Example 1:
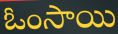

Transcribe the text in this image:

ఓంసాయి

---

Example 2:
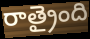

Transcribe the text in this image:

రాత్రైంది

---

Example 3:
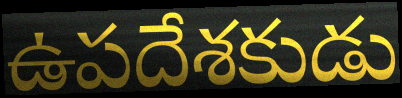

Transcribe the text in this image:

ఉపదేశకుడు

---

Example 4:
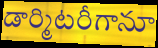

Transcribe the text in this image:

డార్మిటరీగానూ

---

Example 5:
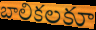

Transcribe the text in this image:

బాలికలకూ